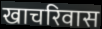
खाचरिवास